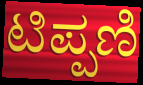
ಟಿಪ್ಪಣಿ